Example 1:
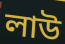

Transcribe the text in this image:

লাউ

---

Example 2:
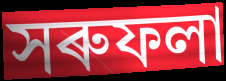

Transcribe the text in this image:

সৰুফলা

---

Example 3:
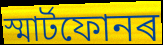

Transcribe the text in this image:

স্মাৰ্টফোনৰ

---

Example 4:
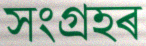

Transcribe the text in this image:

সংগ্ৰহৰ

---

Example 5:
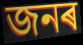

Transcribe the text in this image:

জনৰ